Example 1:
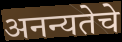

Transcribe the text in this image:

अनन्यतेचे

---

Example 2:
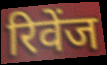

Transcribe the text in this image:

रिवेंज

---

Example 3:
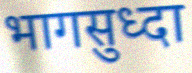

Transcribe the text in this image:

भागसुध्दा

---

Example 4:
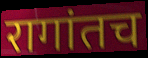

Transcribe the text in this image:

रागांतच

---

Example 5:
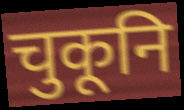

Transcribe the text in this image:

चुकूनि